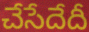
చేసేదేదీ